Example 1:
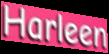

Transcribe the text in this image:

Harleen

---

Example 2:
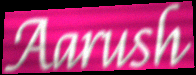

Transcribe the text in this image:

Aarush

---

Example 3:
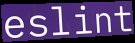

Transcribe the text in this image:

eslint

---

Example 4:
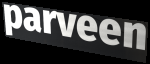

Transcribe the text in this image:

parveen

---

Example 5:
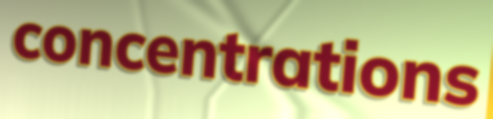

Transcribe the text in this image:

concentrations